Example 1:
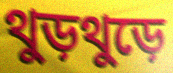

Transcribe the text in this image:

থুড়থুড়ে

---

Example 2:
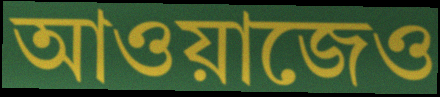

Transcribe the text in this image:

আওয়াজেও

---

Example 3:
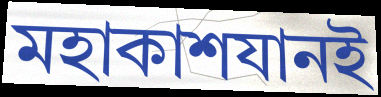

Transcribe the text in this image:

মহাকাশযানই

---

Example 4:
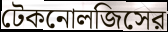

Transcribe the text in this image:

টেকনোলজিসের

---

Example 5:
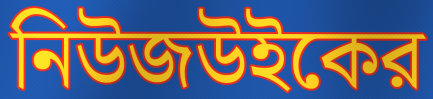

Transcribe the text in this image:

নিউজউইকের